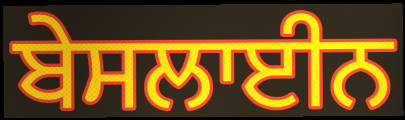
ਬੇਸਲਾਈਨ